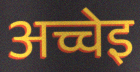
अच्चेइ